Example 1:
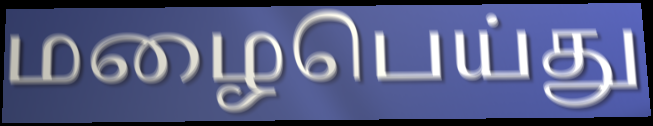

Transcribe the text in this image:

மழைபெய்து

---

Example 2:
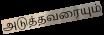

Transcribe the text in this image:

அடுத்தவரையும்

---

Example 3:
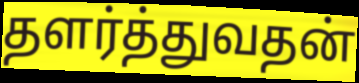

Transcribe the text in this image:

தளர்த்துவதன்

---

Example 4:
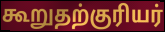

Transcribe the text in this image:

கூறுதற்குரியர்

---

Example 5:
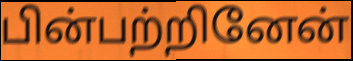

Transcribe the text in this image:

பின்பற்றினேன்